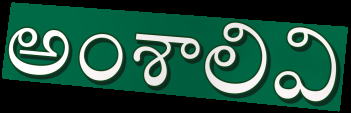
అంశాలివి